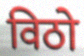
विठो